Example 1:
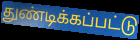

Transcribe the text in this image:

துண்டிக்கப்பட்டு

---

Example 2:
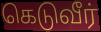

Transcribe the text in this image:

கெடுவீர்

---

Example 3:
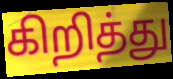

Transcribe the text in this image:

கிறித்து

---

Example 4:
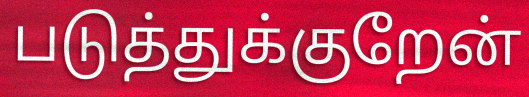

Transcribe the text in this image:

படுத்துக்குறேன்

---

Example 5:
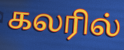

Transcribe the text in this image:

கலரில்